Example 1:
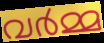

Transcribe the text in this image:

വർമ്മ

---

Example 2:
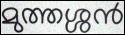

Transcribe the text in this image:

മുത്തശ്ശൻ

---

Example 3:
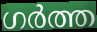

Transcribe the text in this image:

ഗർത്ത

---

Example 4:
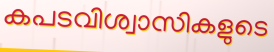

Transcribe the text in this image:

കപടവിശ്വാസികളുടെ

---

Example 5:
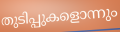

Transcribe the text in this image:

തുടിപ്പുകളൊന്നും